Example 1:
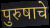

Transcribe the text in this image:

पुरुषाचे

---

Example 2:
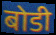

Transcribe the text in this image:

बोडी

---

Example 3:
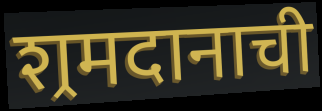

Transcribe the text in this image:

श्रमदानाची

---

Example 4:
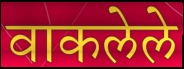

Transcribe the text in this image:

वाकलेले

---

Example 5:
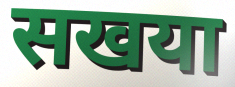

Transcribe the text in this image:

सखया